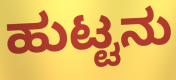
ಹುಟ್ಟನು